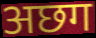
अछग